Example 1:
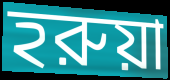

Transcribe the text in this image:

হরুয়া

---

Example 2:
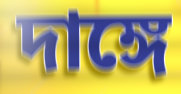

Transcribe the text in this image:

দাঙ্গে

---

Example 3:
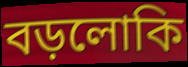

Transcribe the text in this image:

বড়লোকি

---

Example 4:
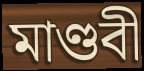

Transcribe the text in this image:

মাণ্ডবী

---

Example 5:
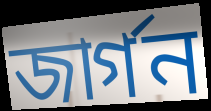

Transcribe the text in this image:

জার্গন